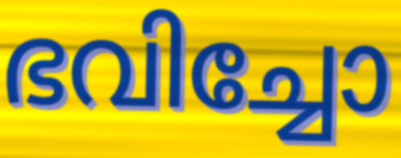
ഭവിച്ചോ